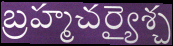
బ్రహ్మచర్యైశ్చ